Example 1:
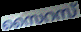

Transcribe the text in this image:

സൈറസ്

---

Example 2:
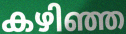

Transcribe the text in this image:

കഴിഞ്ഞ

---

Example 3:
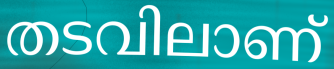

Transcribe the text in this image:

തടവിലാണ്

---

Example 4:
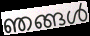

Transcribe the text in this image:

ഞങ്ങൾ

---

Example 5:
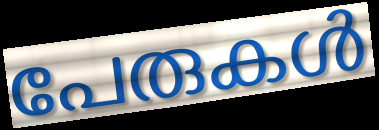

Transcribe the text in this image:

പേരുകൾ